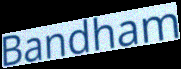
Bandham